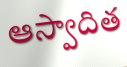
ఆస్వాదిత